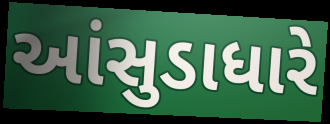
આંસુડાધારે